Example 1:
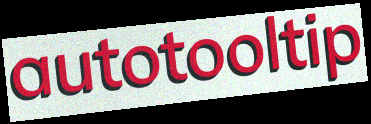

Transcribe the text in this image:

autotooltip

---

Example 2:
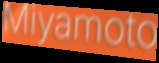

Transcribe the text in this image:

Miyamoto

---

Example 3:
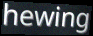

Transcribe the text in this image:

hewing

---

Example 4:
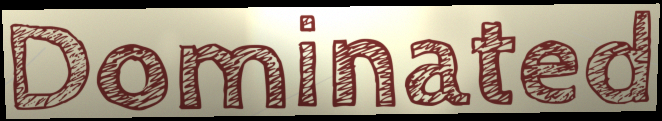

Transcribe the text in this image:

Dominated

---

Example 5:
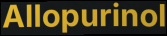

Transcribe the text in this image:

Allopurinol